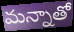
మన్నాతో